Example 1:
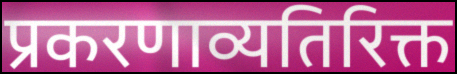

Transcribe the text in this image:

प्रकरणाव्यतिरिक्त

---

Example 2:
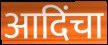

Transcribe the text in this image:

आदिंचा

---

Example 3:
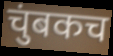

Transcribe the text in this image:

चुंबकच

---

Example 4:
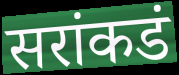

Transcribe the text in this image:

सरांकडं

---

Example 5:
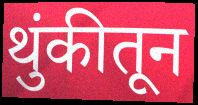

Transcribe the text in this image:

थुंकीतून